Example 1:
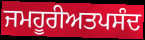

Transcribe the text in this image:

ਜਮਹੂਰੀਅਤਪਸੰਦ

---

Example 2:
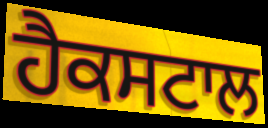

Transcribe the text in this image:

ਹੈਕਸਟਾਲ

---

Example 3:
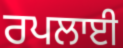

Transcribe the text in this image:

ਰਪਲਾਈ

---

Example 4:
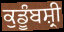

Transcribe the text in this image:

ਕੁਡੂੰਬਸ਼੍ਰੀ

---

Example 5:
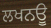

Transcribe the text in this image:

ਲਖਨਊ